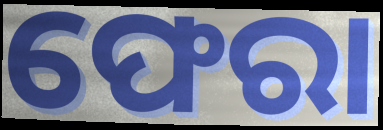
ଫେରା